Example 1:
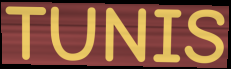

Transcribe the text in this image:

TUNIS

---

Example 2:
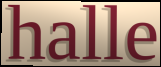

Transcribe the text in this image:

halle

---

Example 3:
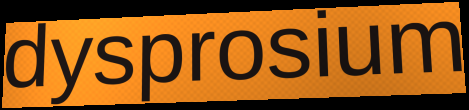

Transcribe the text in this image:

dysprosium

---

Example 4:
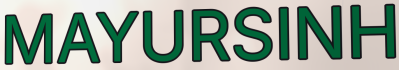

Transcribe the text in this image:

MAYURSINH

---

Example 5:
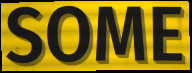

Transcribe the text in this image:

SOME